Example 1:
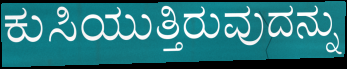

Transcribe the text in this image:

ಕುಸಿಯುತ್ತಿರುವುದನ್ನು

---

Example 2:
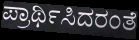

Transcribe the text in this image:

ಪ್ರಾರ್ಥಿಸಿದರಂತೆ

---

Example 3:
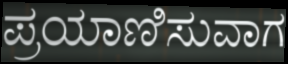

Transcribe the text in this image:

ಪ್ರಯಾಣಿಸುವಾಗ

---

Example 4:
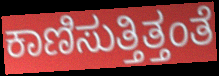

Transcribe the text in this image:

ಕಾಣಿಸುತ್ತಿತ್ತಂತೆ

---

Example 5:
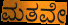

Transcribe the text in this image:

ಮತವೇ